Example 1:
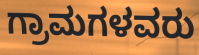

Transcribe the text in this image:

ಗ್ರಾಮಗಳವರು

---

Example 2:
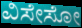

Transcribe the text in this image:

ವಿಸೇಸೋ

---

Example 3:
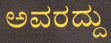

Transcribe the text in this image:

ಅವರದ್ದು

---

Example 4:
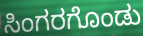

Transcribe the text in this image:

ಸಿಂಗರಗೊಂಡು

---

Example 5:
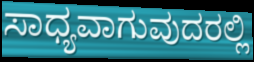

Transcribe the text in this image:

ಸಾಧ್ಯವಾಗುವುದರಲ್ಲಿ